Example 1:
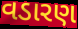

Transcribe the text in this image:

વડારણ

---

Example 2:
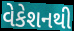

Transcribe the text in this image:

વેકેશનથી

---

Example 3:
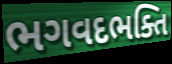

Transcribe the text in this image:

ભગવદભક્તિ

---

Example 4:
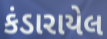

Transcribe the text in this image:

કંડારાયેલ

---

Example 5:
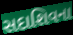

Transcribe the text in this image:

સદાશિવના